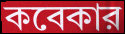
কবেকার